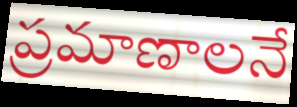
ప్రమాణాలనే